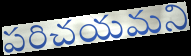
పరిచయమని